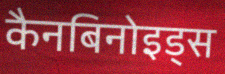
कैनबिनोइड्स